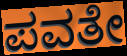
ಪವತೇ